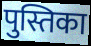
पुस्तिका